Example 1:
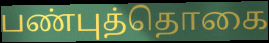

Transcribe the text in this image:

பண்புத்தொகை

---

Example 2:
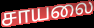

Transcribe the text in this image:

சாயலை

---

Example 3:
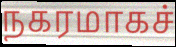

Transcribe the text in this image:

நகரமாகச்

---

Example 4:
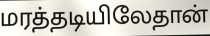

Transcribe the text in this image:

மரத்தடியிலேதான்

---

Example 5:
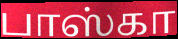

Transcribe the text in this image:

பாஸ்கா